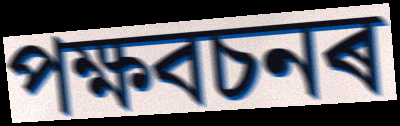
পক্ষবচনৰ